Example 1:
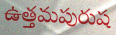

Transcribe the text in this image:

ఉత్తమపురుష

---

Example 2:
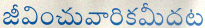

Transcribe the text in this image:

జీవించువారికమీదట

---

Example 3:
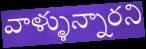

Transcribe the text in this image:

వాళ్ళున్నారని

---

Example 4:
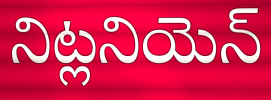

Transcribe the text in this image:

నిట్లనియెన్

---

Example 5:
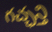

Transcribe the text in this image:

గచ్ఛన్తి